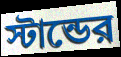
স্টান্ডের